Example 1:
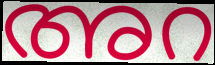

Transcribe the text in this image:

അറ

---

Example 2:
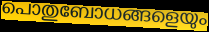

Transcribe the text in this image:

പൊതുബോധങ്ങളെയും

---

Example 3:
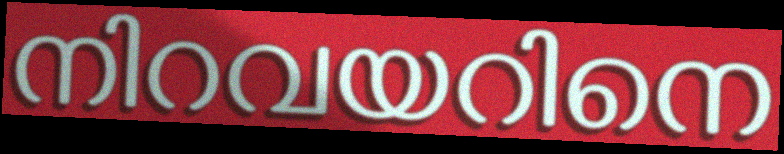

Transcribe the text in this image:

നിറവയറിനെ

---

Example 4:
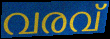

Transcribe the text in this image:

വരവ്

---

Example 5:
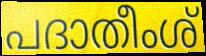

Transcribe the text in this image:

പദാതീംശ്